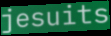
jesuits